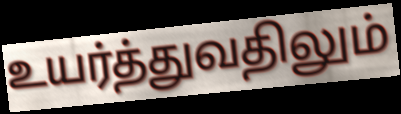
உயர்த்துவதிலும்